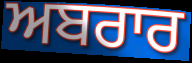
ਅਬਰਾਰ